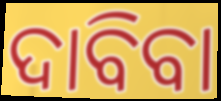
ଦାବିବା